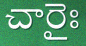
చారైః